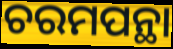
ଚରମପନ୍ଥା